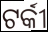
ଟର୍କୀ